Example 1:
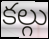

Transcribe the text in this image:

కల్గు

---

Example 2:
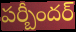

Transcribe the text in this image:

పర్బీందర్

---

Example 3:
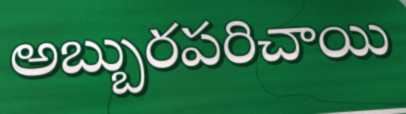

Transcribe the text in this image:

అబ్బురపరిచాయి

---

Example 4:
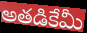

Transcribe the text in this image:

అతడికేమీ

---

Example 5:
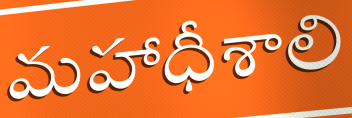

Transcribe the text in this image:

మహాధీశాలి